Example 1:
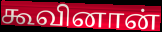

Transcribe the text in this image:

கூவினான்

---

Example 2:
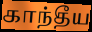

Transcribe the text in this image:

காந்தீய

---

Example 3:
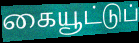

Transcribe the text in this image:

கையூட்டுப்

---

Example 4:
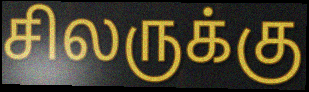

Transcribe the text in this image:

சிலருக்கு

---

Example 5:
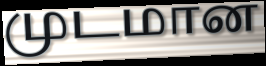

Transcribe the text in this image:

முடமான